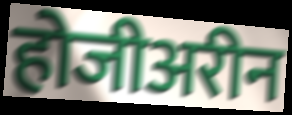
होजीअरीन